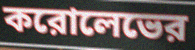
করোলেভের